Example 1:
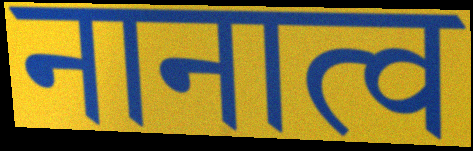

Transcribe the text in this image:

नानात्व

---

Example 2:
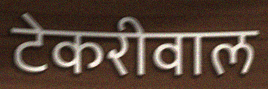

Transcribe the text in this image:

टेकरीवाल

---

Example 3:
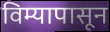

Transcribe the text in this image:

विम्यापासून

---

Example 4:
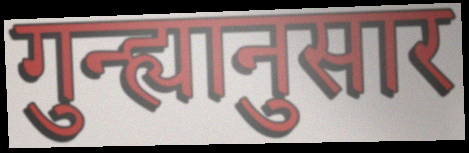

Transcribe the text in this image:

गुन्ह्यानुसार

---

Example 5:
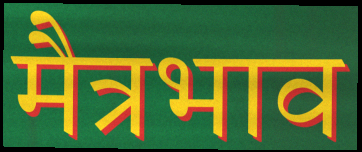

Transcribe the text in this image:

मैत्रभाव